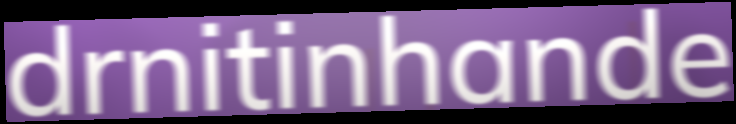
drnitinhande